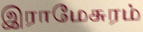
இராமேசுரம்